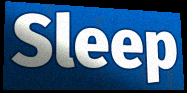
Sleep